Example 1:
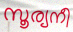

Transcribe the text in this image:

സൂര്യനീ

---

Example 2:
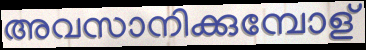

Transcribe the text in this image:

അവസാനിക്കുമ്പോള്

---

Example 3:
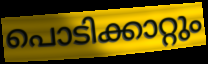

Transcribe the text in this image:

പൊടിക്കാറ്റും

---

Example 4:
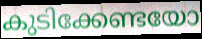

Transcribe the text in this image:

കുടിക്കേണ്ടയോ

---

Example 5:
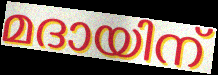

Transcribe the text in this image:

മദായിന്